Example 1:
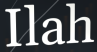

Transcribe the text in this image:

Ilah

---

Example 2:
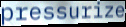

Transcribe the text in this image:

pressurize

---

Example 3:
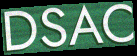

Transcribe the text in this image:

DSAC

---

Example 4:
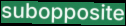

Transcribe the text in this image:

subopposite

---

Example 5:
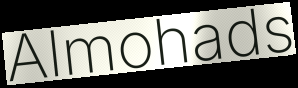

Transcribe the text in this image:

Almohads